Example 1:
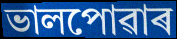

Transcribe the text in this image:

ভালপোৱাৰ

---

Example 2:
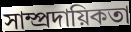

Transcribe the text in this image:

সাম্প্ৰদায়িকতা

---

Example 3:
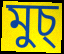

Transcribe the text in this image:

মুচ্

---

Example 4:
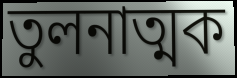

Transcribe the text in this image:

তুলনাত্মক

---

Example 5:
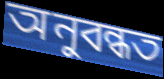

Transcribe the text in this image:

অনুবন্ধত